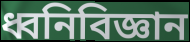
ধ্বনিবিজ্ঞান